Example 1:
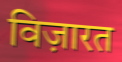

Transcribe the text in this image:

विज़ारत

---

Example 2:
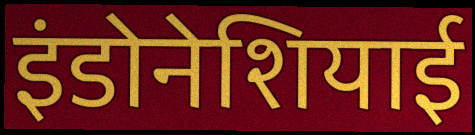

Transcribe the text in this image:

इंडोनेशियाई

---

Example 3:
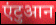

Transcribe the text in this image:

एंटुआन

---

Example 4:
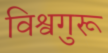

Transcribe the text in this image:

विश्वगुरू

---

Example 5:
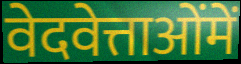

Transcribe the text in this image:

वेदवेत्ताओंमें